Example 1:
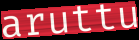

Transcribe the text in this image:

aruttu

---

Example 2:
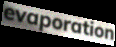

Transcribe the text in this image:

evaporation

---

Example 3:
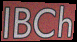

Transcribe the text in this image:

IBCh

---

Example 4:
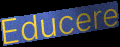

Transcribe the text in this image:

Educere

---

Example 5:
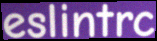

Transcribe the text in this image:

eslintrc